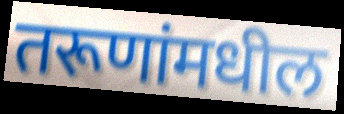
तरूणांमधील